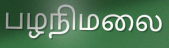
பழநிமலை